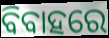
ବିବାହରେ